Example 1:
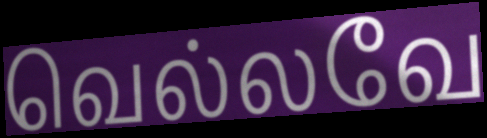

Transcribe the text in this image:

வெல்லவே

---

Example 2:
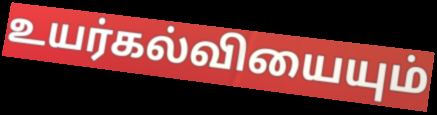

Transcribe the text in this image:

உயர்கல்வியையும்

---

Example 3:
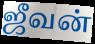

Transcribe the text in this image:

ஜீவன்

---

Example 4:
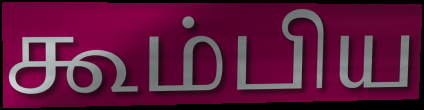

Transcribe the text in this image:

கூம்பிய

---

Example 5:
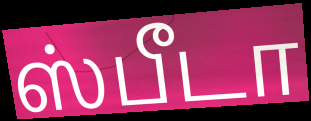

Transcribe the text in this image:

ஸ்பீடா